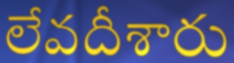
లేవదీశారు